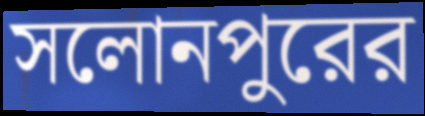
সলোনপুরের